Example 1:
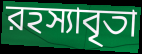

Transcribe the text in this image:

রহস্যাবৃতা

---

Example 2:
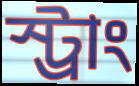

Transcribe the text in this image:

স্ট্রাং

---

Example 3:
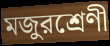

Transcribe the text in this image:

মজুরশ্রেণী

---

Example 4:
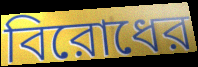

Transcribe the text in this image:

বিরোধের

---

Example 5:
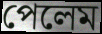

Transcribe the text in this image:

পেলেম